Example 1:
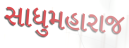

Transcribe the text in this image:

સાધુમહારાજ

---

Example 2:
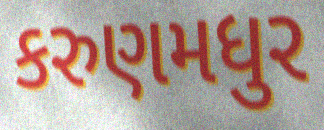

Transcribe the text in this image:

કરુણમધુર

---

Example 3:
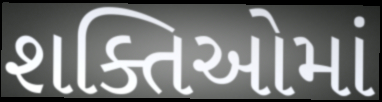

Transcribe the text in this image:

શક્તિઓમાં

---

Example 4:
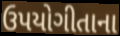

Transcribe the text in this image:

ઉપયોગીતાના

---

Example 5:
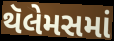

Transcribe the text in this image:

થૅલેમસમાં